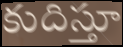
కుదిస్తూ